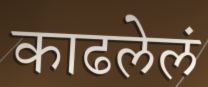
काढलेलं